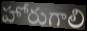
హోరుగాలి